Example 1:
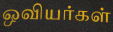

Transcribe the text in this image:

ஒவியர்கள்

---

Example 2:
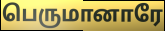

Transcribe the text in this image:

பெருமானாரே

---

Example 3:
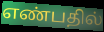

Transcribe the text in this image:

எண்பதில்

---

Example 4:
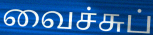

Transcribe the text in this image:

வைச்சுப்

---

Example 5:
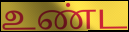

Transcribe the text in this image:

உண்ட